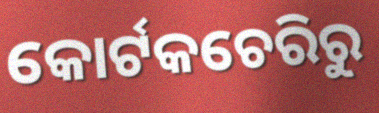
କୋର୍ଟକଚେରିରୁ